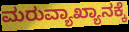
ಮರುವ್ಯಾಖ್ಯಾನಕ್ಕೆ